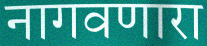
नागवणारा